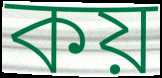
কয়